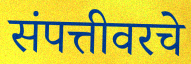
संपत्तीवरचे